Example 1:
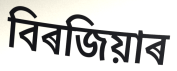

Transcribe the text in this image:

বিৰজিয়াৰ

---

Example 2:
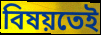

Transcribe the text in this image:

বিষয়তেই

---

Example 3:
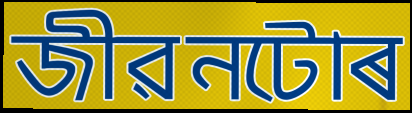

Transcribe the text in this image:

জীৱনটোৰ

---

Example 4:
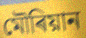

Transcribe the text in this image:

মৌৰিয়ান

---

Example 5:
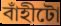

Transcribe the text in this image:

বাঁহীটো